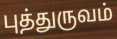
புத்துருவம்